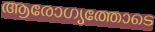
ആരോഗ്യത്തോടെ